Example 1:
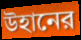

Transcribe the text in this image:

উহানের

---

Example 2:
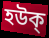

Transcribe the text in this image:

হউক্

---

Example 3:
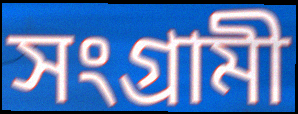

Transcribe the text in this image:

সংগ্রামী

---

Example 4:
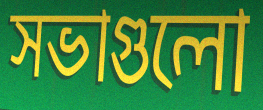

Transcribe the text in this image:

সভাগুলো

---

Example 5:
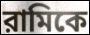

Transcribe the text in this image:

রামিকে